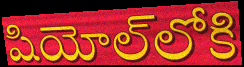
షియోల్‌లోకి